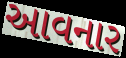
આવનાર